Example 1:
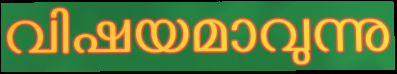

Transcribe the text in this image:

വിഷയമാവുന്നു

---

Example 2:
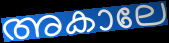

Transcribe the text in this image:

അകാലേ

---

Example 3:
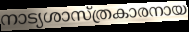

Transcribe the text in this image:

നാട്യശാസ്ത്രകാരനായ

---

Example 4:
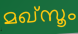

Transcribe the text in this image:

മഖ്സൂം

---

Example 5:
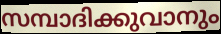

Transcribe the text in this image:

സമ്പാദിക്കുവാനും